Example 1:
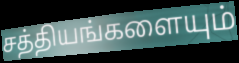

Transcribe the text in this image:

சத்தியங்களையும்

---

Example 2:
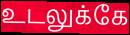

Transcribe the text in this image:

உடலுக்கே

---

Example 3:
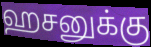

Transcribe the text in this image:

ஹசனுக்கு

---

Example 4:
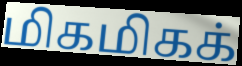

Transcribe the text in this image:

மிகமிகக்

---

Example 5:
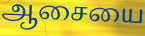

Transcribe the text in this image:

ஆசையை